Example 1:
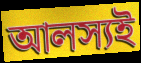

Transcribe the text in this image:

আলস্যই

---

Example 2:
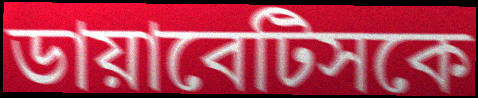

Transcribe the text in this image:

ডায়াবেটিসকে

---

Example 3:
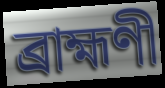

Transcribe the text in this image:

ব্রাহ্মণী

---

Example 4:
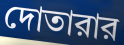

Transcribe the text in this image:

দোতারার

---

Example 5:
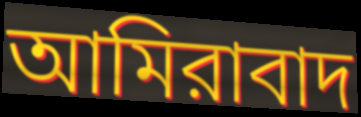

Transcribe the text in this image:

আমিরাবাদ